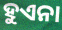
ହୁଏନା